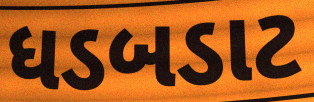
ધડબડાટ